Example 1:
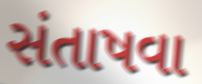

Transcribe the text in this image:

સંતાષવા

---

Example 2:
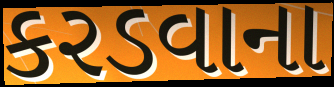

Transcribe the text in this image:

કરડવાના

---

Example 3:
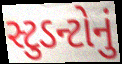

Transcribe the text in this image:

સ્ટુડન્ટોનું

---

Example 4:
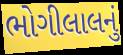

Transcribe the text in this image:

ભોગીલાલનું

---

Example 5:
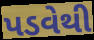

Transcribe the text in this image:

પડવેથી